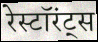
रेस्टॉरंट्‌स